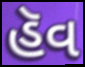
હૅવ